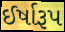
ઈર્ષારૂપ